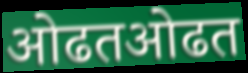
ओढतओढत